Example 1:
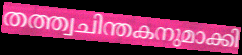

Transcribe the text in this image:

തത്ത്വചിന്തകനുമാക്കി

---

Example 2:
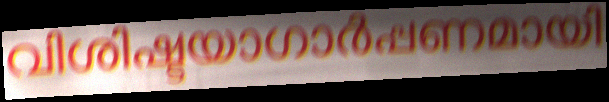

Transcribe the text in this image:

വിശിഷ്ടയാഗാർപ്പണമായി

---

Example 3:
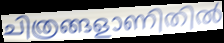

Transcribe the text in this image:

ചിത്രങ്ങളാണിതിൽ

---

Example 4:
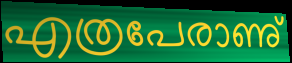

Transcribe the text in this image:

എത്രപേരാണു്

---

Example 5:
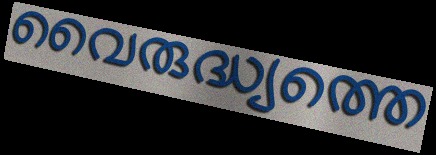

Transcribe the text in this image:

വൈരുദ്ധ്യത്തെ